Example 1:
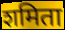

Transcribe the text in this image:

शमिता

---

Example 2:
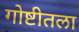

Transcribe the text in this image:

गोष्टीतला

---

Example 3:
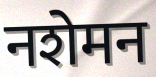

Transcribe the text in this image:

नशेमन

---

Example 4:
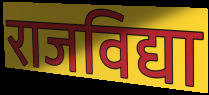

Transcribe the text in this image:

राजविद्या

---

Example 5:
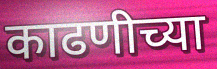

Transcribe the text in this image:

काढणीच्या